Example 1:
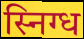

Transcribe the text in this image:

स्‍निग्ध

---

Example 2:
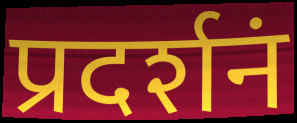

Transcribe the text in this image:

प्रदर्शनं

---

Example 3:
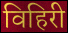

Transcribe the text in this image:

विहिरी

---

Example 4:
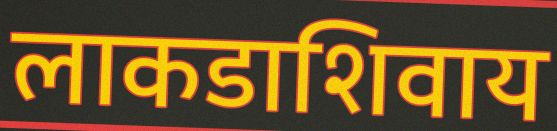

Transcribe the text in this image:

लाकडाशिवाय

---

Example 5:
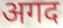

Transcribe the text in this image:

अगद